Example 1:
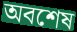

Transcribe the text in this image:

অবশেষ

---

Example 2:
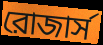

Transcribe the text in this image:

রোজার্স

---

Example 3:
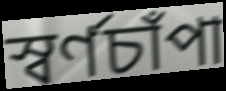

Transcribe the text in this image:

স্বর্ণচাঁপা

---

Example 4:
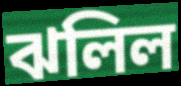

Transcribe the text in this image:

ঝলিল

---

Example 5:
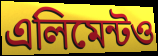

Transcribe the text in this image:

এলিমেন্টও